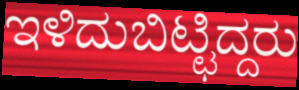
ಇಳಿದುಬಿಟ್ಟಿದ್ದರು